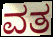
ವತ